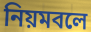
নিয়মবলে